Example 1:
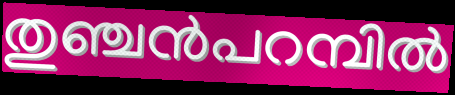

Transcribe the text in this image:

തുഞ്ചൻപറമ്പിൽ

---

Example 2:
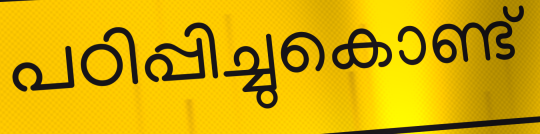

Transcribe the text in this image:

പഠിപ്പിച്ചുകൊണ്ട്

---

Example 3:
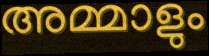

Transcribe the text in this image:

അമ്മാളും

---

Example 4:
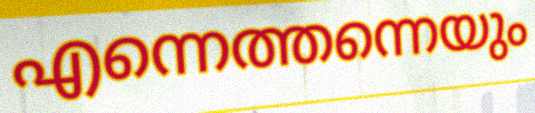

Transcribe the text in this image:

എന്നെത്തന്നെയും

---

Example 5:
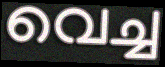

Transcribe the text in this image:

വെച്ച